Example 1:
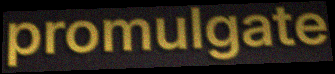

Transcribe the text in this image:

promulgate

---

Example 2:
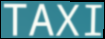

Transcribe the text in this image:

TAXI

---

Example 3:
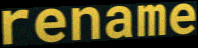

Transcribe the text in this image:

rename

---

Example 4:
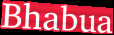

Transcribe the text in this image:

Bhabua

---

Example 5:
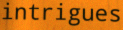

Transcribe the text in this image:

intrigues